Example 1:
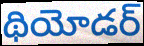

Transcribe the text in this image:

థియోడర్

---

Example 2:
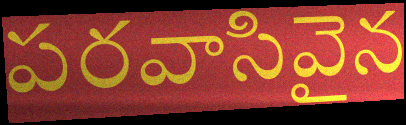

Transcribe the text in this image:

పరవాసివైన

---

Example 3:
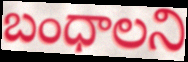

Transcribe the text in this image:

బంధాలని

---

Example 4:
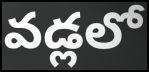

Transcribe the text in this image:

వడ్లలో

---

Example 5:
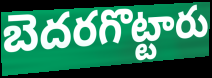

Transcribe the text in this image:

బెదరగొట్టారు